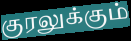
குரலுக்கும்